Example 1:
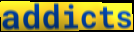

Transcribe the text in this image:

addicts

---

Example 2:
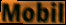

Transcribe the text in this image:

Mobil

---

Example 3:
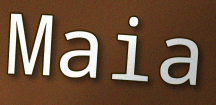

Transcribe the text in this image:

Maia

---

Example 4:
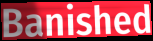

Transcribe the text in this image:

Banished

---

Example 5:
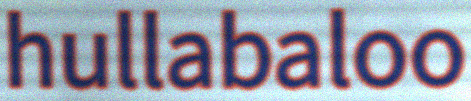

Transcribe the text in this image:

hullabaloo